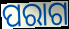
ପରାଗ